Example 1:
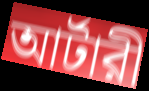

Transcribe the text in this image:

আর্টারী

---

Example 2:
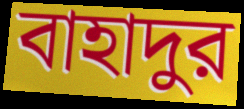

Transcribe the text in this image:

বাহাদুর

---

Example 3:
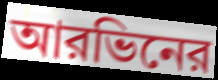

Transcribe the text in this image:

আরভিনের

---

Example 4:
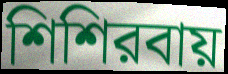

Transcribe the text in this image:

শিশিরবায়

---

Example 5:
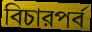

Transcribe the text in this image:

বিচারপর্ব